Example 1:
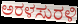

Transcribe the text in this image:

ಅರಳಸುರಳಿ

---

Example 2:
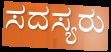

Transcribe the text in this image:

ಸದಸ್ಯರು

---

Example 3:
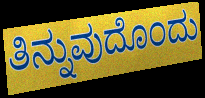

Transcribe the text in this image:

ತಿನ್ನುವುದೊಂದು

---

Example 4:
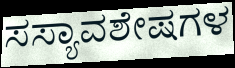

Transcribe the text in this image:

ಸಸ್ಯಾವಶೇಷಗಳ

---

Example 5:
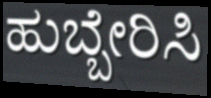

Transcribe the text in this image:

ಹುಬ್ಬೇರಿಸಿ